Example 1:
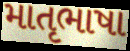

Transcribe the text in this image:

માતૃભાષા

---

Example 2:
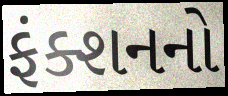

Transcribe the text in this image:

ફંક્શનનો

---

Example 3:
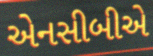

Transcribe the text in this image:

એનસીબીએ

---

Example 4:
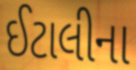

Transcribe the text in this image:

ઈટાલીના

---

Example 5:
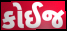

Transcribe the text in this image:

કોઈજ